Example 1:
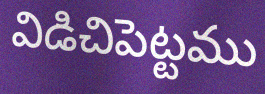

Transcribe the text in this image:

విడిచిపెట్టము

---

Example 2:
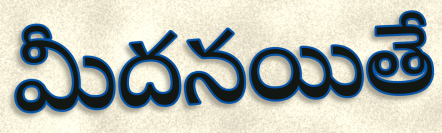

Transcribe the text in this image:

మీదనయితే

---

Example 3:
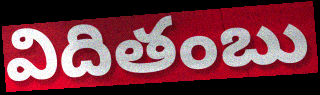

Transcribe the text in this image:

విదితంబు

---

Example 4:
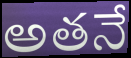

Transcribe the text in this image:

అతనే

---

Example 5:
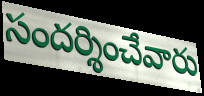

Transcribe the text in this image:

సందర్శించేవారు